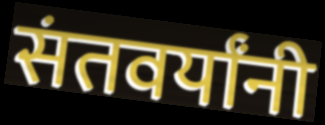
संतवर्यांनी